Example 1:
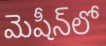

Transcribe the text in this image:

మెషీన్‌లో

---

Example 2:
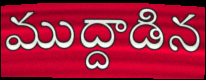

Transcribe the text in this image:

ముద్దాడిన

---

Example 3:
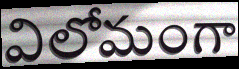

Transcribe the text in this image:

విలోమంగా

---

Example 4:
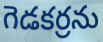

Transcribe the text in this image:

గెడకర్రను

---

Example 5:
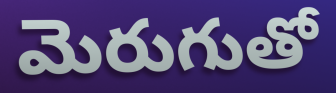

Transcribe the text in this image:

మెరుగుతో